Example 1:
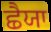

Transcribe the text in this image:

ਛੈਯਾ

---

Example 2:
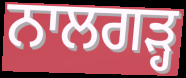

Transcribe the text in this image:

ਨਾਲਗੜ੍ਹ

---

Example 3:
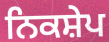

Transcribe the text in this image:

ਨਿਕਸ਼ੇਪ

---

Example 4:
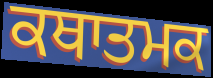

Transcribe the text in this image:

ਕਥਾਤਮਕ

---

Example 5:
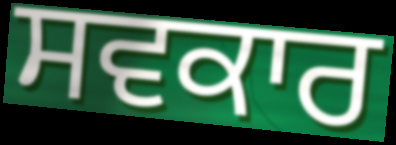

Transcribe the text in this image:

ਸਵਕਾਰ